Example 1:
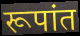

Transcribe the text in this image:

रूपांत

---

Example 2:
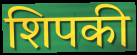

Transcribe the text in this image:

शिपकी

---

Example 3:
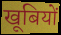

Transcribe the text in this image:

खूबियों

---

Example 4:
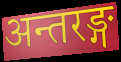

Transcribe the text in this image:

अन्तरङ्ग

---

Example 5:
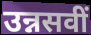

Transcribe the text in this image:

उन्नसवीं